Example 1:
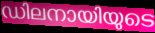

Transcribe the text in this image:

ഡിലനായിയുടെ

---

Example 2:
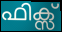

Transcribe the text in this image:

ഫിക്സ്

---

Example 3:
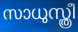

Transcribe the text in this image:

സാധുസ്ത്രീ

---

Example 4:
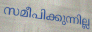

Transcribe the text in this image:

സമീപിക്കുന്നില്ല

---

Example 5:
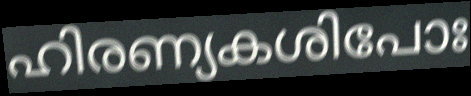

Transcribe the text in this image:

ഹിരണ്യകശിപോഃ